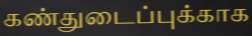
கண்துடைப்புக்காக